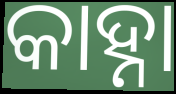
କାହ୍ନା